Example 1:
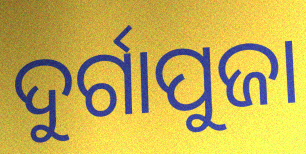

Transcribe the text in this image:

ଦୁର୍ଗାପୁଜା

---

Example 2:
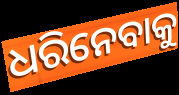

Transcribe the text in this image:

ଧରିନେବାକୁ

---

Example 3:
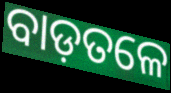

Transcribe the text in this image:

ବାଡ଼ତଳେ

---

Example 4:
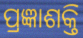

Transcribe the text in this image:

ପ୍ରଜ୍ଞାଶକ୍ତି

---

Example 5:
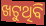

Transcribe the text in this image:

ଖଟୁଥିବି